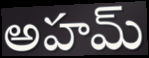
అహమ్